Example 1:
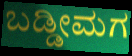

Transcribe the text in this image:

ಬಡ್ಡೀಮಗ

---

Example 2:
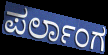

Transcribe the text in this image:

ಪರ್ಲಾಂಗ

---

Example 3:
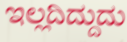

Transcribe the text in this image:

ಇಲ್ಲದಿದ್ದುದು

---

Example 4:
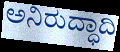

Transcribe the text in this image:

ಅನಿರುದ್ಧಾದಿ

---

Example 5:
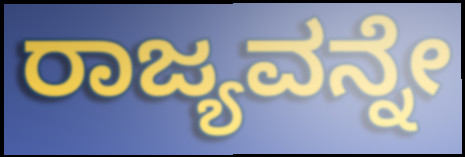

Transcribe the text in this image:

ರಾಜ್ಯವನ್ನೇ